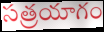
సత్రయాగం